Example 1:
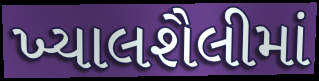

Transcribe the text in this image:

ખ્યાલશૈલીમાં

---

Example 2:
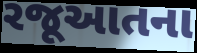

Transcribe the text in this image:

રજૂઆતના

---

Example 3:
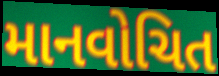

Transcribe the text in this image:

માનવોચિત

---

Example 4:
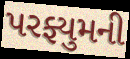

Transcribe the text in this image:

પરફ્યુમની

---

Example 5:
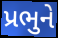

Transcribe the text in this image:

પ્રભુને